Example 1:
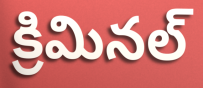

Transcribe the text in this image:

క్రిమినల్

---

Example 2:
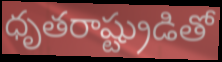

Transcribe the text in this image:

ధృతరాష్ట్రుడితో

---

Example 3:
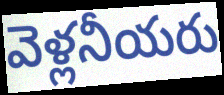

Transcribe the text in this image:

వెళ్లనీయరు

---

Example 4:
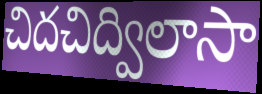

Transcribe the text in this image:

చిదచిద్విలాసా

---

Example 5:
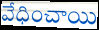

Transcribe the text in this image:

వేధించాయి